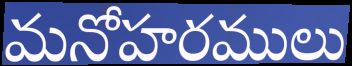
మనోహరములు